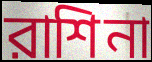
রাশিনা